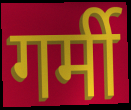
गर्मी